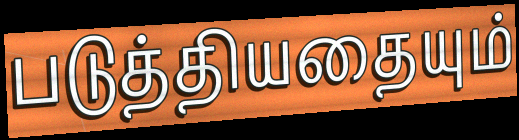
படுத்தியதையும்